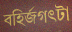
বহির্জগৎটা